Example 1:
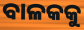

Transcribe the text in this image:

ବାଳକକୁ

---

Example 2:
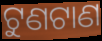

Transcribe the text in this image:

ଟୁଣଟାଣ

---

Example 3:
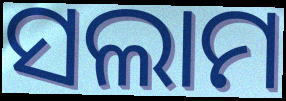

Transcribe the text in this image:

ସଲାମ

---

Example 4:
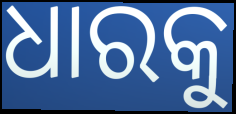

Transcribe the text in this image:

ଧାରକୁ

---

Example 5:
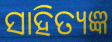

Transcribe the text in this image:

ସାହିତ୍ୟଜ୍ଞ